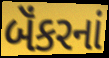
બૅંકરનાં